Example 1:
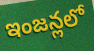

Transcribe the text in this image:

ఇంజన్లలో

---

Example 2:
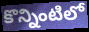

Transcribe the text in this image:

కొన్నింటిలో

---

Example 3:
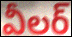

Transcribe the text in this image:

వీలర్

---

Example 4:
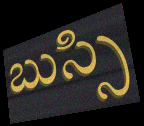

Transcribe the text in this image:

బుస్సి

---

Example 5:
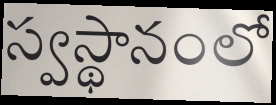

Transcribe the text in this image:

స్వస్థానంలో